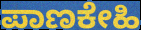
ಪಾಣಕೇಹಿ